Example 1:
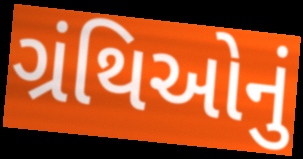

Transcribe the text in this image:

ગ્રંથિઓનું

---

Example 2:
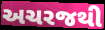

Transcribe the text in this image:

અચરજથી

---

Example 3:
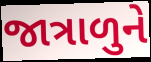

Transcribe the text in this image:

જાત્રાળુને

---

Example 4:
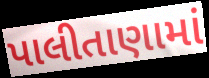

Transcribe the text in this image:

પાલીતાણામાં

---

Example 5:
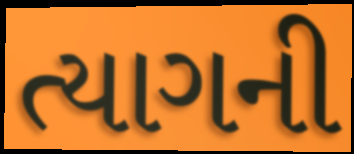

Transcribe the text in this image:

ત્‍યાગની